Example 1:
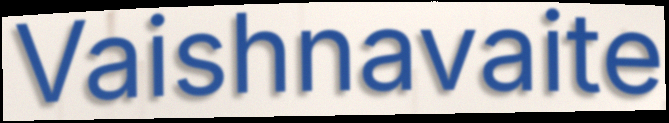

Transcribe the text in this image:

Vaishnavaite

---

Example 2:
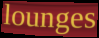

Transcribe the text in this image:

lounges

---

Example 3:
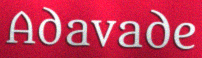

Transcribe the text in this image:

Adavade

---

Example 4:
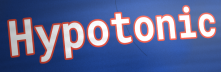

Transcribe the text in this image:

Hypotonic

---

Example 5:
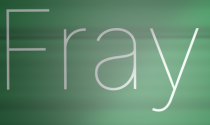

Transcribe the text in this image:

Fray